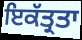
ਇਕੱਤ੍ਰਤਾ